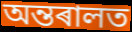
অন্তৰালত